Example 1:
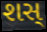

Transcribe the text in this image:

શસ્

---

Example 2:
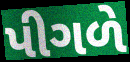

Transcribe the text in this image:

પીગળે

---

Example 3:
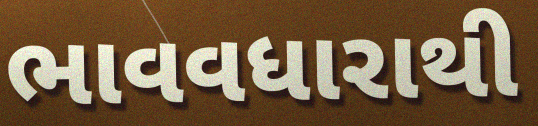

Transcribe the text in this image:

ભાવવધારાથી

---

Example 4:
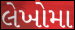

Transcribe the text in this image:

લેખોમા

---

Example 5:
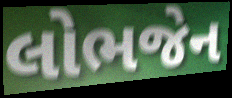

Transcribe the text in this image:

લોભજેન